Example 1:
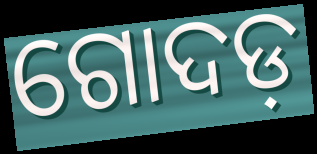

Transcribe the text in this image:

ଗୋଦଡ଼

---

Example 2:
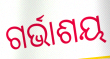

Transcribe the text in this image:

ଗର୍ଭାଶୟ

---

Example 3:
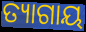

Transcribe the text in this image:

ତ୍ୟାଗାୟ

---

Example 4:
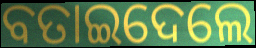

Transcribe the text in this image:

ବତାଇଦେଲେ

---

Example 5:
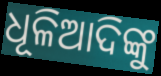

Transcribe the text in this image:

ଧୂଳିଆଦିଙ୍କୁ